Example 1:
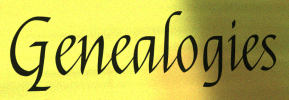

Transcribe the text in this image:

Genealogies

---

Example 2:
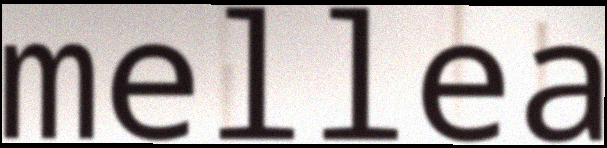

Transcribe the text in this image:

mellea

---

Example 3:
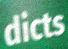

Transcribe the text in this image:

dicts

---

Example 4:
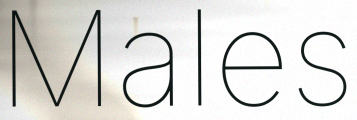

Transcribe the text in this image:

Males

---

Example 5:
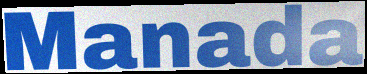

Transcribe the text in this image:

Manada